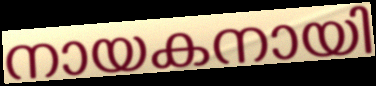
നായകനായി